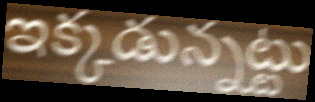
ఇక్కడున్నట్టు